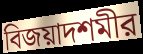
বিজয়াদশমীর